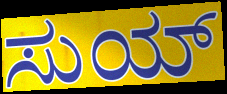
ಸುಯ್